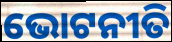
ଭୋଟନୀତି